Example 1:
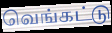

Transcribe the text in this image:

வெங்கட்டு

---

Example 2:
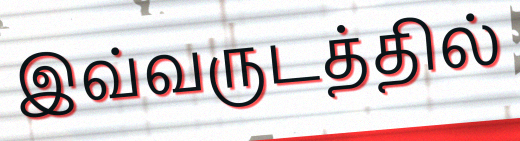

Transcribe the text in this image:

இவ்வருடத்தில்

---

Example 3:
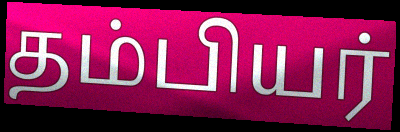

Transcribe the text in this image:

தம்பியர்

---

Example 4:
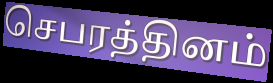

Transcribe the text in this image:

செபரத்தினம்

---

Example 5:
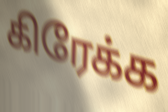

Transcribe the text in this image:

கிரேக்க